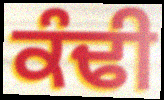
ਕੰਢੀ